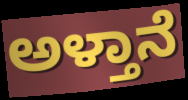
ಅಳ್ತಾನೆ